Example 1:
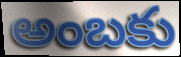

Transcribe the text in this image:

అంబకు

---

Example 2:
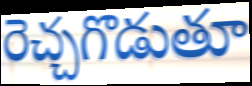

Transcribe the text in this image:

రెచ్చగొడుతూ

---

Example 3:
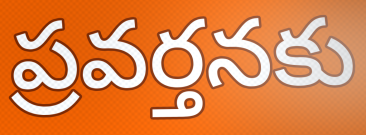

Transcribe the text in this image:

ప్రవర్తనకు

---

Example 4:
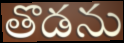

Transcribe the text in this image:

తొడను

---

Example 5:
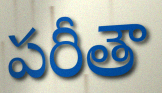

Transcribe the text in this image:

పరీతౌ